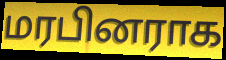
மரபினராக